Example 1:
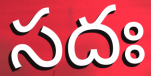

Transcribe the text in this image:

సదః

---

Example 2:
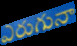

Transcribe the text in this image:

ఎరుగునా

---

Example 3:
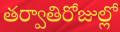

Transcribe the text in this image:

తర్వాతిరోజుల్లో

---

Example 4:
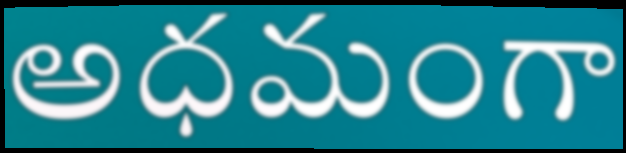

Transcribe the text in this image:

అధమంగా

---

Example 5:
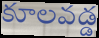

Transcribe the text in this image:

కూలవడ్డ